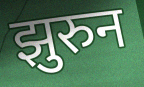
झुरुन